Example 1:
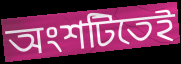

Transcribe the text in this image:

অংশটিতেই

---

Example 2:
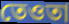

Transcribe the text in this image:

তেওতা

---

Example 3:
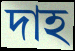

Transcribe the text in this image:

দাহ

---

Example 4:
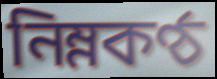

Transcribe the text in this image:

নিম্নকণ্ঠ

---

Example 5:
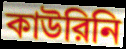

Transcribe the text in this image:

কাউরিনি